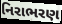
નિરાભરણ